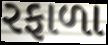
રફાળા